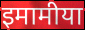
इमामीया